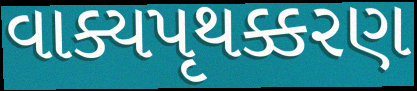
વાક્યપૃથક્કરણ